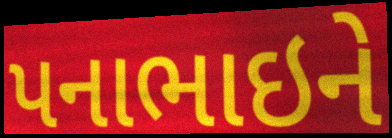
પનાભાઇને